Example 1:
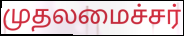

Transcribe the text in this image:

முதலமைச்சர்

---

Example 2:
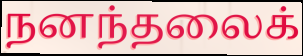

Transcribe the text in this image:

நனந்தலைக்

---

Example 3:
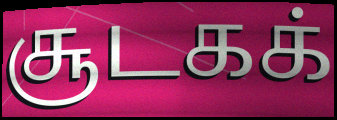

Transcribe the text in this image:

சூடகக்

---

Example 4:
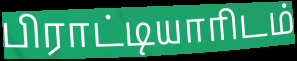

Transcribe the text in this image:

பிராட்டியாரிடம்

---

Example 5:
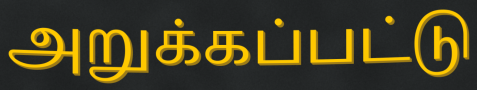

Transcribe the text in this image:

அறுக்கப்பட்டு